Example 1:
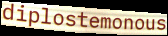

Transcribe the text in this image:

diplostemonous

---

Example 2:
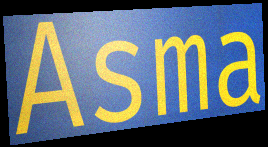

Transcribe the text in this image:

Asma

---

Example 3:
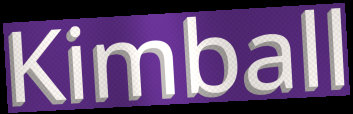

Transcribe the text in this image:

Kimball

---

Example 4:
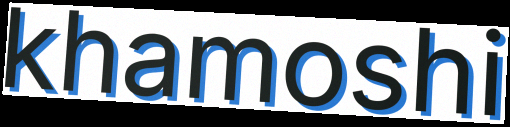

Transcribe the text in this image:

khamoshi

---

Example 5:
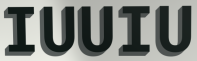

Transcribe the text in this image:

IUUIU